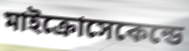
মাইক্রোসেকেন্ডে